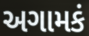
અગામકં